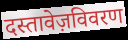
दस्तावेज़विवरण